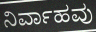
ನಿರ್ವಾಹವು